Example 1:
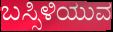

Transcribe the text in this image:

ಬಸ್ಸಿಳಿಯುವ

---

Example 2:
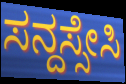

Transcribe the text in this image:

ಸನ್ದಸ್ಸೇಸಿ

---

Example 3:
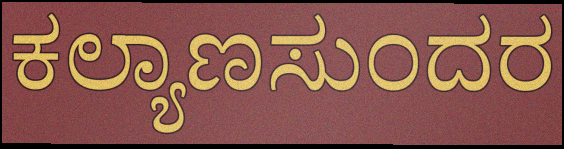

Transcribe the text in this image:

ಕಲ್ಯಾಣಸುಂದರ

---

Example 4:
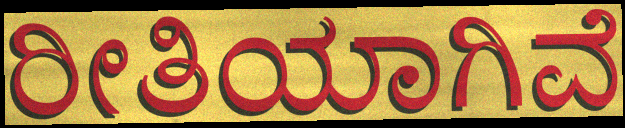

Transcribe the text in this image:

ರೀತಿಯಾಗಿವೆ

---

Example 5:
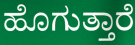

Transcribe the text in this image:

ಹೊಗುತ್ತಾರೆ